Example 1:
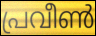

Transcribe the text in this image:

പ്രവീൺ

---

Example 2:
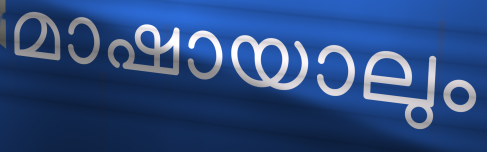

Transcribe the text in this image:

മാഷായാലും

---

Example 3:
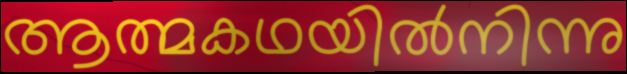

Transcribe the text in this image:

ആത്മകഥയിൽനിന്നു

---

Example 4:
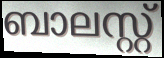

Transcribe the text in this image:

ബാലസ്റ്റ്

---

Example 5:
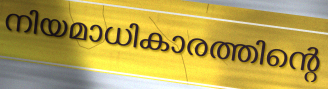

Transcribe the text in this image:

നിയമാധികാരത്തിന്റെ